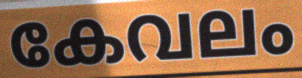
കേവലം